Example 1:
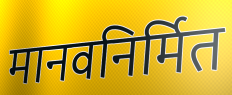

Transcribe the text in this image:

मानवनिर्मित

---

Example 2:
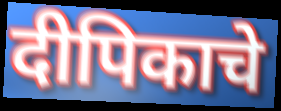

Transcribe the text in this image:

दीपिकाचे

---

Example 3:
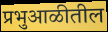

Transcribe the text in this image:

प्रभुआळीतील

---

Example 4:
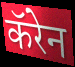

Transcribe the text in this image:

कॅरेन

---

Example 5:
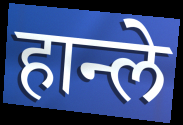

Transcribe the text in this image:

हान्ले